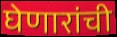
घेणारांची